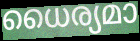
ധൈര്യമാ